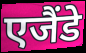
एजैंडे